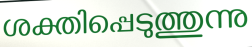
ശക്തിപ്പെടുത്തുന്നു